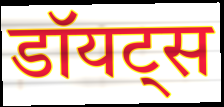
डॉयट्स